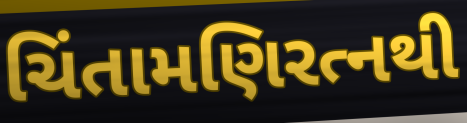
ચિંતામણિરત્નથી